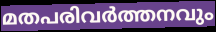
മതപരിവർത്തനവും